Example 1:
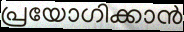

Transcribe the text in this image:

പ്രയോഗിക്കാൻ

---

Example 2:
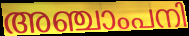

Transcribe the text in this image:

അഞ്ചാംപനി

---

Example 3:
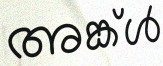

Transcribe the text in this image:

അങ്ക്ൾ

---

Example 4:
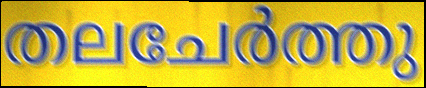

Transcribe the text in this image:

തലചേർത്തു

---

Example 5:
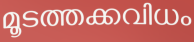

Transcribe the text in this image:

മൂടത്തക്കവിധം